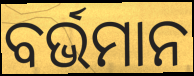
ବର୍ଭମାନ